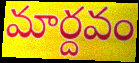
మార్దవం